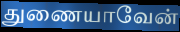
துணையாவேன்